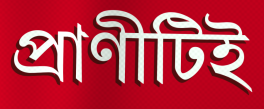
প্রাণীটিই